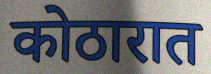
कोठारात